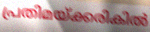
പ്രതിമയ്ക്കരികിൽ